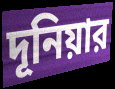
দূনিয়ার